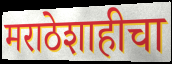
मराठेशाहीचा